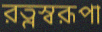
রত্নস্বরূপা